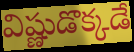
విష్ణుడొక్కడే